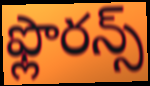
ఫ్లొరన్స్